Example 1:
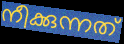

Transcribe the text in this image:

നീക്കുന്നത്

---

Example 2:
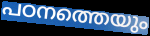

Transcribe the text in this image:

പഠനത്തെയും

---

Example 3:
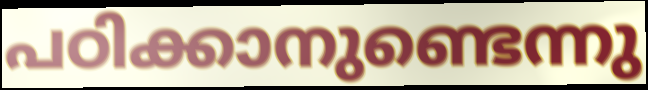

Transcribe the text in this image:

പഠിക്കാനുണ്ടെന്നു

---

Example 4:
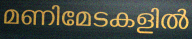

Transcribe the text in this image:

മണിമേടകളിൽ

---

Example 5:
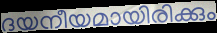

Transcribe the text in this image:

ദയനീയമായിരിക്കും